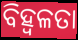
ବିହ୍ଵଳତା